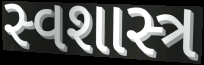
સ્વશાસ્ત્ર